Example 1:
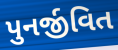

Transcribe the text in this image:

પુનર્જીવિત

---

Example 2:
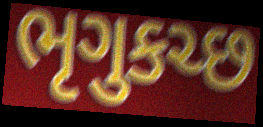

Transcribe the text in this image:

ભૃગુકચ્છ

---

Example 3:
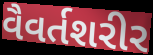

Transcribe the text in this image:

વૈવર્તશરીર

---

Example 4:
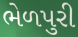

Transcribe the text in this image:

ભેળપુરી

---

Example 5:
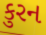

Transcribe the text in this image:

કુરન